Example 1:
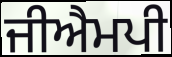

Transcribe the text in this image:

ਜੀਐਮਪੀ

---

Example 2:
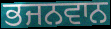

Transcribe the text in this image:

ਭਜਨਵਾਨ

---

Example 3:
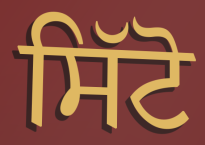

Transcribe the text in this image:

ਸਿੱਟੋ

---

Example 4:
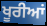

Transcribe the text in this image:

ਖੂਰੀਆਂ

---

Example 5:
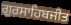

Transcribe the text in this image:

ਗੁਰਸਾਹਿਬਜੀਤ